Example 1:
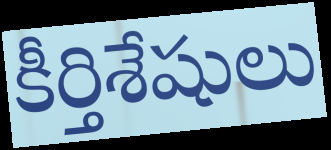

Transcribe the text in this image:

కీర్తిశేషులు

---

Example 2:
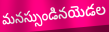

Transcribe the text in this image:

మనస్సుండినయెడల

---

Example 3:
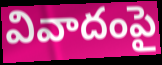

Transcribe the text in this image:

వివాదంపై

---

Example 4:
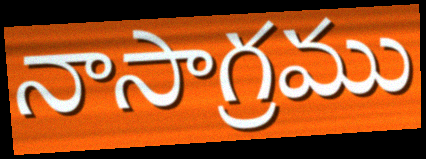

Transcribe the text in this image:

నాసాగ్రము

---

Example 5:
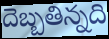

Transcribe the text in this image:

దెబ్బతిన్నది